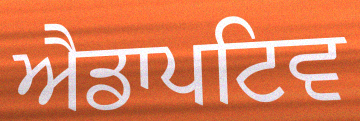
ਐਡਾਪਟਿਵ